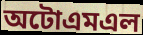
অটোএমএল